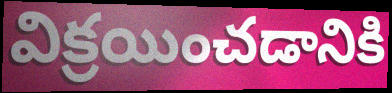
విక్రయించడానికి